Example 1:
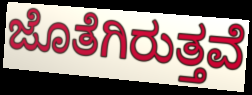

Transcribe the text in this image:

ಜೊತೆಗಿರುತ್ತವೆ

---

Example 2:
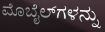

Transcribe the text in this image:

ಮೊಬೈಲ್‌ಗಳನ್ನು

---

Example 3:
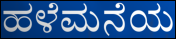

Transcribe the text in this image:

ಹಳೆಮನೆಯ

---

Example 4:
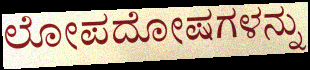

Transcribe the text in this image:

ಲೋಪದೋಷಗಳನ್ನು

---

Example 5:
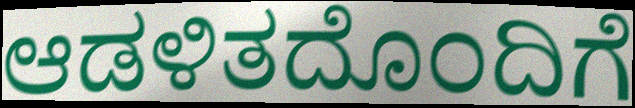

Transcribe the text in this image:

ಆಡಳಿತದೊಂದಿಗೆ